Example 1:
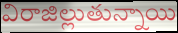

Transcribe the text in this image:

విరాజిల్లుతున్నాయి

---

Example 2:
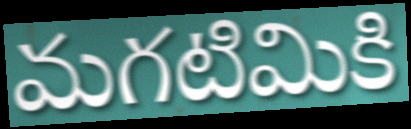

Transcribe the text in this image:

మగటిమికి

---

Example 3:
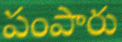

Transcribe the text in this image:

పంపారు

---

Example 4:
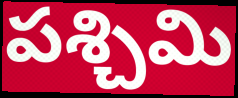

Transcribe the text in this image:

పశ్చిమి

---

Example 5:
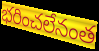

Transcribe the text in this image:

భరించలేనంత